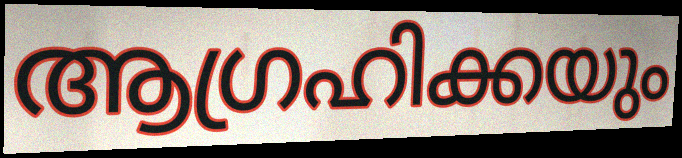
ആഗ്രഹിക്കയും